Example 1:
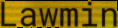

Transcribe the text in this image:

Lawmin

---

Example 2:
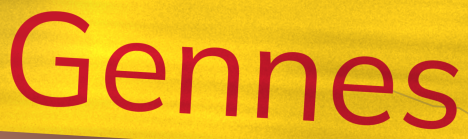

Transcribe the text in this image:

Gennes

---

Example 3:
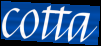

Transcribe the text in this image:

cotta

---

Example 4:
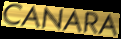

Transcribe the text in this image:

CANARA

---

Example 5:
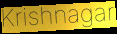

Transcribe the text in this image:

Krishnagar